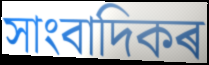
সাংবাদিকৰ